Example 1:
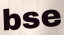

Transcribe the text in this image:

bse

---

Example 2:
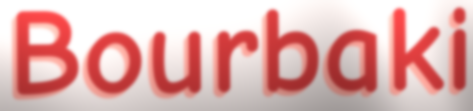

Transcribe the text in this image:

Bourbaki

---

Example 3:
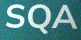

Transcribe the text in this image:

SQA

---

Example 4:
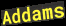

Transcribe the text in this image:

Addams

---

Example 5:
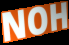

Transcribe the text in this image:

NOH